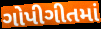
ગોપીગીતમાં